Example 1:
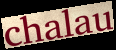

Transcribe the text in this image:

chalau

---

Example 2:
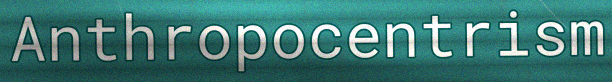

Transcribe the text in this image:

Anthropocentrism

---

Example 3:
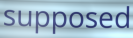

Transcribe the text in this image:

supposed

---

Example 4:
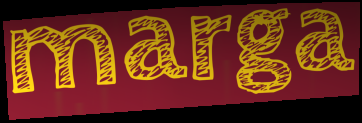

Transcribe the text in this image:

marga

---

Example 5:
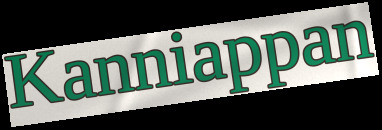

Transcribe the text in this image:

Kanniappan